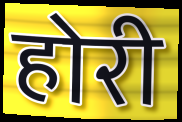
होरी